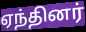
ஏந்தினர்